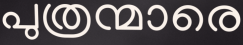
പുത്രന്മാരെ